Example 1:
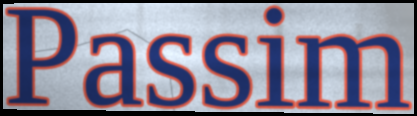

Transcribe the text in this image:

Passim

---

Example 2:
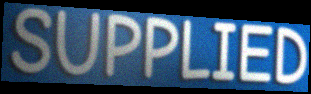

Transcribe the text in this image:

SUPPLIED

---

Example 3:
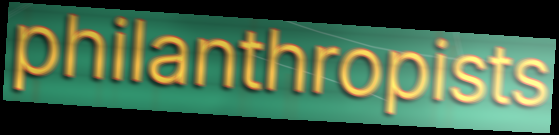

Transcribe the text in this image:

philanthropists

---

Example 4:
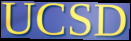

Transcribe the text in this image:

UCSD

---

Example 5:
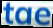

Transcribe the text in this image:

tae